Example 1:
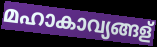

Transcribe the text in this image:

മഹാകാവ്യങ്ങള്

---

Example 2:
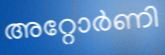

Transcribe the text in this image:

അറ്റോർണി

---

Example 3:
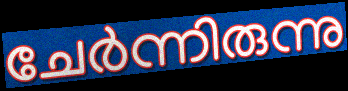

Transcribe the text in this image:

ചേർന്നിരുന്നു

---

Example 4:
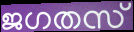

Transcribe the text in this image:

ജഗതസ്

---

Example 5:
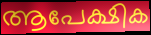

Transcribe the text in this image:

ആപേക്ഷിക